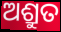
ଅଶ୍ରୁତ